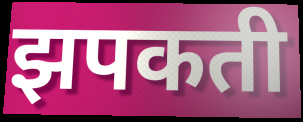
झपकती